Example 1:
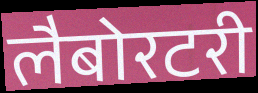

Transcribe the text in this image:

लैबोरटरी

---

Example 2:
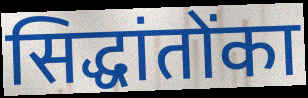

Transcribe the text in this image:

सिद्धांतोंका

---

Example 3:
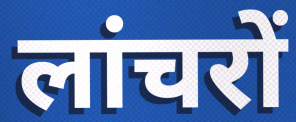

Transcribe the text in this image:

लांचरों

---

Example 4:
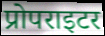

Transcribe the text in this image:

प्रोपराइटर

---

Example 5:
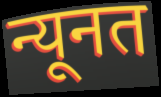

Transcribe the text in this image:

न्यूनत